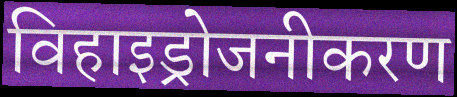
विहाइड्रोजनीकरण